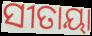
ସୀତାୟା